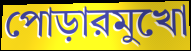
পোড়ারমুখো